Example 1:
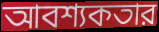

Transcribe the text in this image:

আবশ্যকতার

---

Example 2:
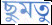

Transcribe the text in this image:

ছুমতু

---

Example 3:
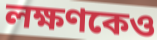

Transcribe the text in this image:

লক্ষণকেও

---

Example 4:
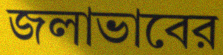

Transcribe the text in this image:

জলাভাবের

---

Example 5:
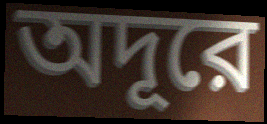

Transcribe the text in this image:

অদূরে